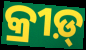
କ୍ରୀଡ଼୍